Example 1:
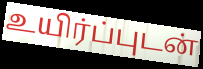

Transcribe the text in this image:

உயிர்ப்புடன்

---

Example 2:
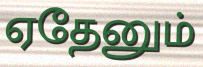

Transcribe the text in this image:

ஏதேனும்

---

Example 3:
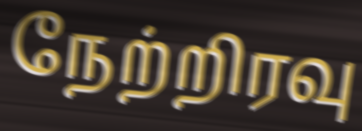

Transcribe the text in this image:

நேற்றிரவு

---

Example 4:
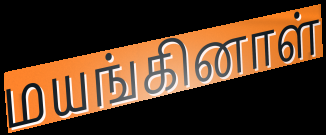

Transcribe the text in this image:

மயங்கினாள்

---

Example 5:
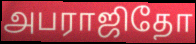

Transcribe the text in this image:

அபராஜிதோ